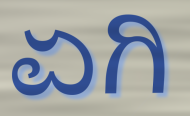
ಏಗಿ